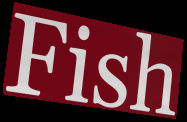
Fish